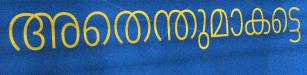
അതെന്തുമാകട്ടെ